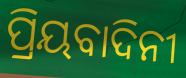
ପ୍ରିୟବାଦିନୀ